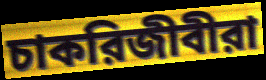
চাকরিজীবীরা